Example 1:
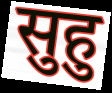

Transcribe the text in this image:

सुहु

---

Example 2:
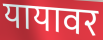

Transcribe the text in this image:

यायावर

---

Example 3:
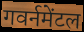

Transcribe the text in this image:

गवर्नमेंटल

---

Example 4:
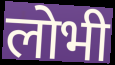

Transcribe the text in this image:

लोभी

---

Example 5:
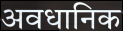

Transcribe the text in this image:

अवधानिक